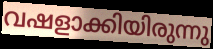
വഷളാക്കിയിരുന്നു